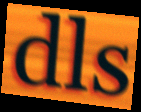
dls